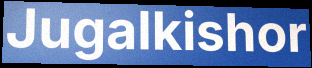
Jugalkishor